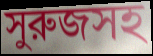
সুরুজসহ